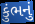
કુંભનું